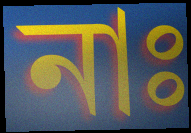
নাঃ